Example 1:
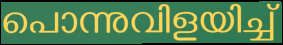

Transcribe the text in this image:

പൊന്നുവിളയിച്ച്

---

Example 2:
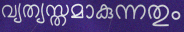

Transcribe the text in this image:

വ്യത്യസ്തമാകുന്നതും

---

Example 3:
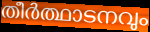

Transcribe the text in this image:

തീർത്ഥാടനവും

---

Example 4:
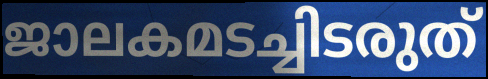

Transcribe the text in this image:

ജാലകമടച്ചിടരുത്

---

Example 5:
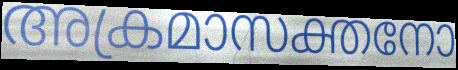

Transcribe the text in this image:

അക്രമാസക്തനോ